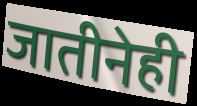
जातीनेही